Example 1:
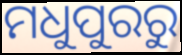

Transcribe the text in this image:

ମଧୁପୁରରୁ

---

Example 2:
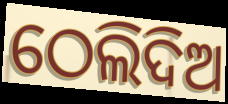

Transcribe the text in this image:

ଠେଲିଦିଅ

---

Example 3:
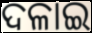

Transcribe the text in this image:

ଦଳାଇ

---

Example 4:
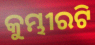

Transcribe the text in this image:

କୁମ୍ଭୀରଟି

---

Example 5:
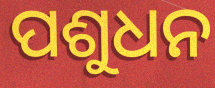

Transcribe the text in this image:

ପଶୁଧନ